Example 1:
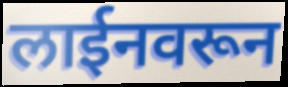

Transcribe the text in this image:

लाईनवरून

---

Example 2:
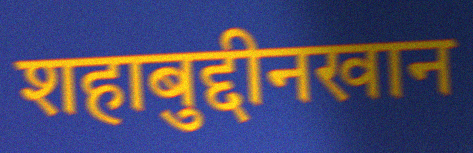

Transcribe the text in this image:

शहाबुद्दीनखान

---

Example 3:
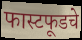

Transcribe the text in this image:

फास्टफूडचे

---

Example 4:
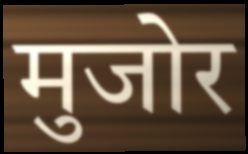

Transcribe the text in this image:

मुजोर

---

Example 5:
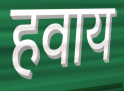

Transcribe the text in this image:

हवाय